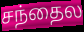
சந்தைல